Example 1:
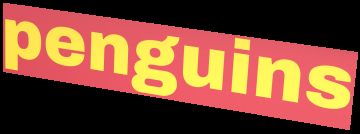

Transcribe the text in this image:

penguins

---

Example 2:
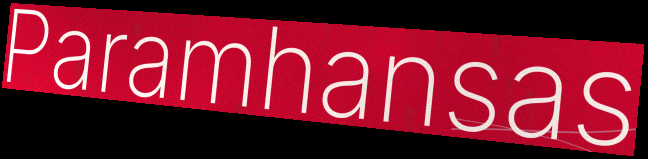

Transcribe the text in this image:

Paramhansas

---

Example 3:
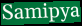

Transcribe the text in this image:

Samipya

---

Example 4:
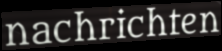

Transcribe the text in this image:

nachrichten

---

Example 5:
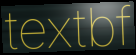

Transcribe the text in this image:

textbf